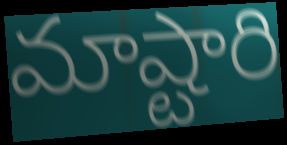
మాష్టారి